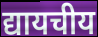
द्यायचीय